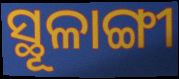
ସ୍ଥୂଳାଙ୍ଗୀ